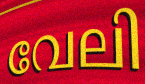
വേലി